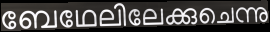
ബേഥേലിലേക്കുചെന്നു